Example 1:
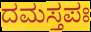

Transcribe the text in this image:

ದಮಸ್ತಪಃ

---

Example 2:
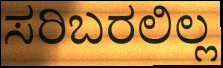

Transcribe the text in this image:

ಸರಿಬರಲಿಲ್ಲ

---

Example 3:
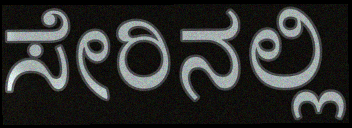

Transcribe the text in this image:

ಸೇರಿನಲ್ಲಿ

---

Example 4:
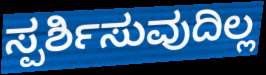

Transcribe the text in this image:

ಸ್ಪರ್ಶಿಸುವುದಿಲ್ಲ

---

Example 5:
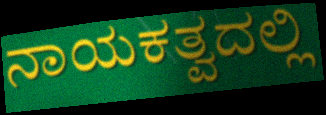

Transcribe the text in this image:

ನಾಯಕತ್ವದಲ್ಲಿ